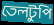
তেলটুপি